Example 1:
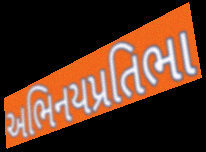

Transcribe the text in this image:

અભિનયપ્રતિભા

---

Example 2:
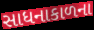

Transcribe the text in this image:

સાધનાકાળના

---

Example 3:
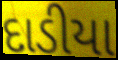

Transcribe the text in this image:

દાડીયા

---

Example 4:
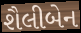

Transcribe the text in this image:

શૈલીબેન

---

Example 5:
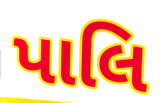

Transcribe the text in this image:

પાલિ